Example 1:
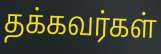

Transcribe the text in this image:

தக்கவர்கள்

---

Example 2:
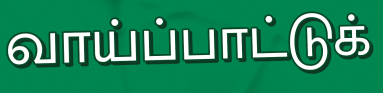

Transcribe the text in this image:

வாய்ப்பாட்டுக்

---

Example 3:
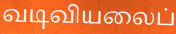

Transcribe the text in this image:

வடிவியலைப்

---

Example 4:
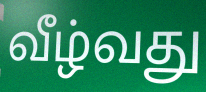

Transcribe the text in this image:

வீழ்வது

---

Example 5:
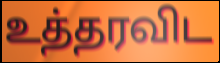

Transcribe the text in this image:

உத்தரவிட